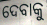
ଦେବାକୁ